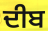
ਦੀਬ